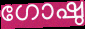
ഗോഷു